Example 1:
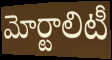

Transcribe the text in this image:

మోర్టాలిటీ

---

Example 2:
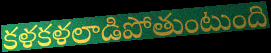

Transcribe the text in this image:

కళకళలాడిపోతుంటుంది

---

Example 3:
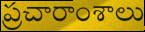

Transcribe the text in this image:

ప్రచారాంశాలు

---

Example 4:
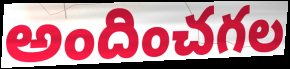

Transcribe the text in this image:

అందించగల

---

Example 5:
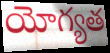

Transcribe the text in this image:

యోగ్యత